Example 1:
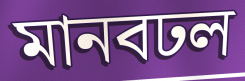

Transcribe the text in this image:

মানবঢল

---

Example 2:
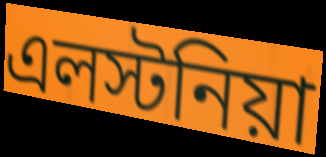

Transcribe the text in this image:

এলস্টনিয়া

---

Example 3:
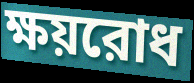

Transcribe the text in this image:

ক্ষয়রোধ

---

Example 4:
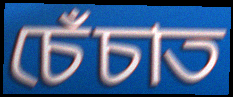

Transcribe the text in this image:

চেঁচাত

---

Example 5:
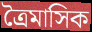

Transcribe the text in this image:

ত্রৈমাসিক